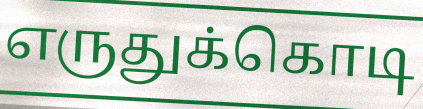
எருதுக்கொடி